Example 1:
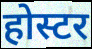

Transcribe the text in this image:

होस्टर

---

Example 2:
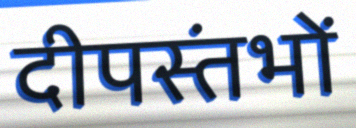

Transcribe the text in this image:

दीपस्तंभों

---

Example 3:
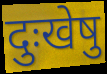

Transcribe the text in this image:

दुःखेषु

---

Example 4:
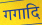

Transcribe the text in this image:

गगादि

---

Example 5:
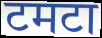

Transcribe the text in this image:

टमटा